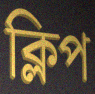
ক্লিপ